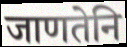
जाणतेनि